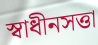
স্বাধীনসত্তা